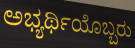
ಅಭ್ಯರ್ಥಿಯೊಬ್ಬರು